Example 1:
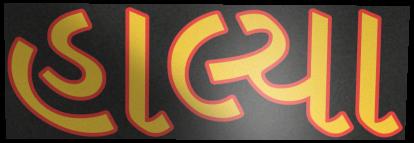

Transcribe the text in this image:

હાલ્યા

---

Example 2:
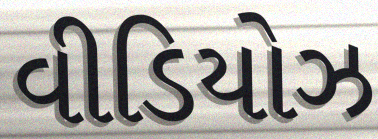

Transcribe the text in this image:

વીડિયોઝ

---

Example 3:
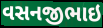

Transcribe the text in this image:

વસનજીભાઇ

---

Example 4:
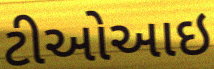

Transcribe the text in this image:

ટીઓઆઇ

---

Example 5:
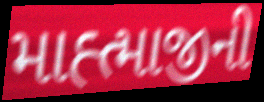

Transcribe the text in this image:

માહ્ત્માજીની